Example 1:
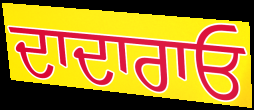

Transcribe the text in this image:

ਦਾਦਾਰਾਓ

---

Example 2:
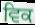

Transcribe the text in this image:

ਵਿਕ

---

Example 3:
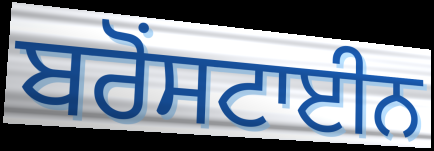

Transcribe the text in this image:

ਬਰੋਂਸਟਾਈਨ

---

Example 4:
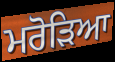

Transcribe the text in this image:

ਮਰੋੜਿਆ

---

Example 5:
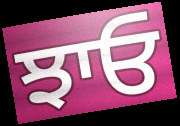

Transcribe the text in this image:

ਝਾਓ